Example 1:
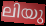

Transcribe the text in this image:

ലിയു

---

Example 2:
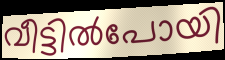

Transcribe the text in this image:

വീട്ടിൽപോയി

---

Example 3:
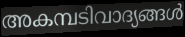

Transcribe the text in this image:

അകമ്പടിവാദ്യങ്ങൾ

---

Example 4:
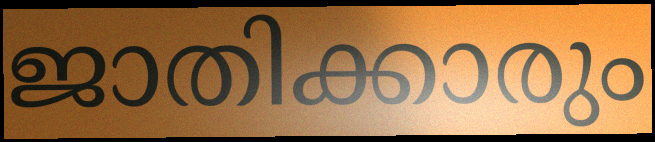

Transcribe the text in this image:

ജാതിക്കാരും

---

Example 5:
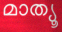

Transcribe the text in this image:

മാത്യൂ